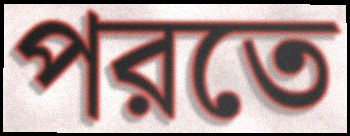
পরতে